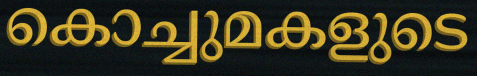
കൊച്ചുമകളുടെ